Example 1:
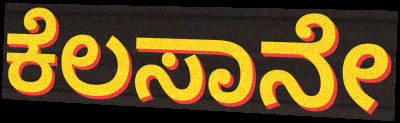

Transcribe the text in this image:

ಕೆಲಸಾನೇ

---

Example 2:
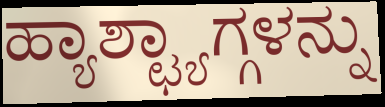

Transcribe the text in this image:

ಹ್ಯಾಶ್ಟ್ಯಾಗ್ಗಳನ್ನು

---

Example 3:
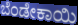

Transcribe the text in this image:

ಬೆಂಡೇಕಾಯಿ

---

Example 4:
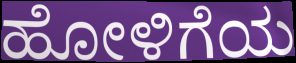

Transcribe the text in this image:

ಹೋಳಿಗೆಯ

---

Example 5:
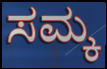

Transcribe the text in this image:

ಸಮ್ಕ